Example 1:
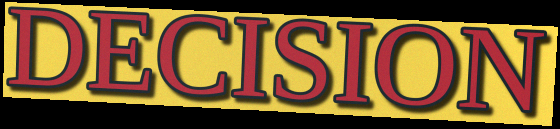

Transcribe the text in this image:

DECISION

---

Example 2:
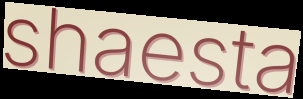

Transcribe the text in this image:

shaesta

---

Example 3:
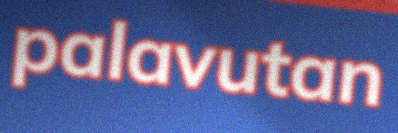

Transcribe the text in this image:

palavutan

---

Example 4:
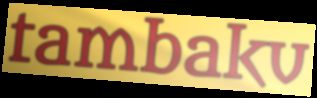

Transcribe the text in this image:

tambaku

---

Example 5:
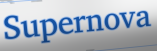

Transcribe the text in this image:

Supernova